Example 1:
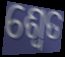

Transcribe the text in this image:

ଶ୍ଵେତ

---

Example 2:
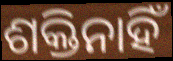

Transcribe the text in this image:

ଶକ୍ତିନାହିଁ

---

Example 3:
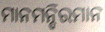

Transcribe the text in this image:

ମାନମନ୍ଦିରମାନ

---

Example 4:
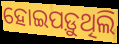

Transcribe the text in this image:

ହୋଇପଡ଼ୁଥିଲି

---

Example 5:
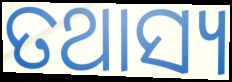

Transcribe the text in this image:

ତଥାସ୍ୟ